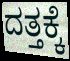
ದತ್ತಕ್ಕೆ